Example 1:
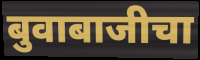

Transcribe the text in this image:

बुवाबाजीचा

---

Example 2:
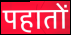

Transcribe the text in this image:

पहातों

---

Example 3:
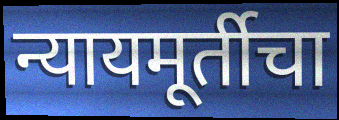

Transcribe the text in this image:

न्यायमूर्तीचा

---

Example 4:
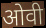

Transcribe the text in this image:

ओवी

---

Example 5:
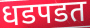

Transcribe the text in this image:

धडपडत